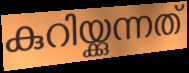
കുറിയ്ക്കുന്നത്